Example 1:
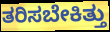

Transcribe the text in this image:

ತರಿಸಬೇಕಿತ್ತು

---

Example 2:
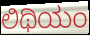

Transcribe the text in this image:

ಲಿಥಿಯಂ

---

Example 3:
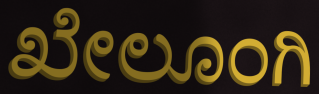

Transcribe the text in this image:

ಖೇಲೂಂಗಿ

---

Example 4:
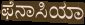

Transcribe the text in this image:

ಫೆನಾಸಿಯಾ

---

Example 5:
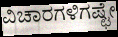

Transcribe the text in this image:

ವಿಚಾರಗಳಿಗಷ್ಟೇ